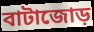
বাটাজোড়